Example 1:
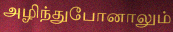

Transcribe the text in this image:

அழிந்துபோனாலும்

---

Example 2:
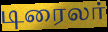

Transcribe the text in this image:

டிரைலர்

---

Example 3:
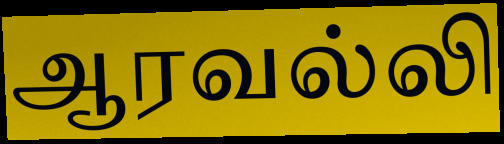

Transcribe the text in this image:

ஆரவல்லி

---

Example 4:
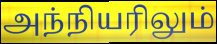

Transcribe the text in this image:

அந்நியரிலும்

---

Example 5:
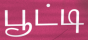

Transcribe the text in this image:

பூட்டி